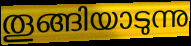
തൂങ്ങിയാടുന്നു